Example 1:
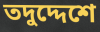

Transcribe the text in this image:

তদুদ্দেশে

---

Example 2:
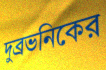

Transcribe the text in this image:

দুব্রভনিকের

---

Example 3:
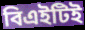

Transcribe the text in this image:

বিএইটিই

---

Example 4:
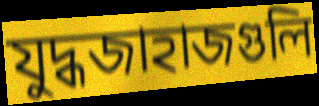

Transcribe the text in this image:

যুদ্ধজাহাজগুলি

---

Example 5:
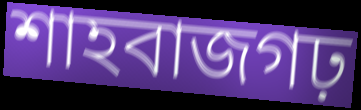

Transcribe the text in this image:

শাহবাজগঢ়